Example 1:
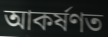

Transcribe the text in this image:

আকৰ্ষণত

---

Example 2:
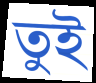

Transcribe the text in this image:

তুই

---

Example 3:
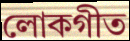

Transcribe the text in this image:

লোকগীত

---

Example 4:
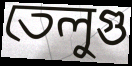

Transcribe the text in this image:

তেলুগু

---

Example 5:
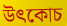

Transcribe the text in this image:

উৎকোচ